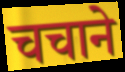
चचाने